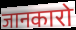
जानकारो